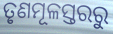
ତୃଣମୂଳସ୍ତରରୁ